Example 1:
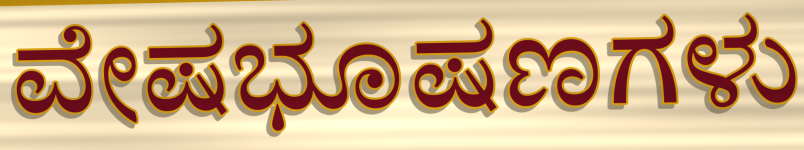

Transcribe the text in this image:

ವೇಷಭೂಷಣಗಳು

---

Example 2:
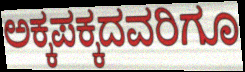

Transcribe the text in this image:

ಅಕ್ಕಪಕ್ಕದವರಿಗೂ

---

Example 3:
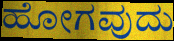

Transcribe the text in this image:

ಹೋಗವುದು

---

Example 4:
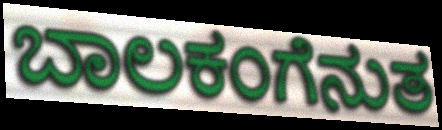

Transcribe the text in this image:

ಬಾಲಕಂಗೆನುತ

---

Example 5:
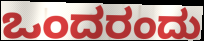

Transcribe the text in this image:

ಒಂದರಂದು